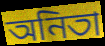
অনিতা